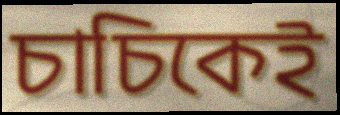
চাচিকেই